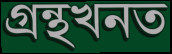
গ্ৰন্থখনত